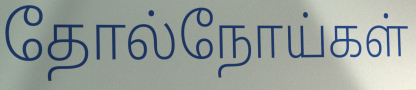
தோல்நோய்கள்